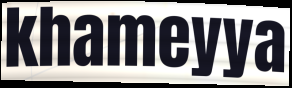
khameyya